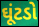
ઘૂંટડો